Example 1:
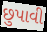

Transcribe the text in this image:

છુપાવી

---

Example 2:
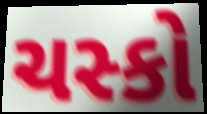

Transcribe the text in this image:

ચસ્કો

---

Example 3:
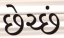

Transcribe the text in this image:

છેચ્છં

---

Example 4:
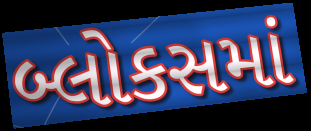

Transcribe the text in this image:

બ્લોકસમાં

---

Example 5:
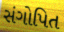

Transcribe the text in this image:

સંગોપિત